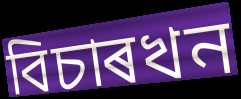
বিচাৰখন